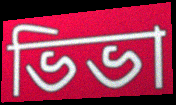
ভিভা